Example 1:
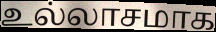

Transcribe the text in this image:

உல்லாசமாக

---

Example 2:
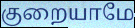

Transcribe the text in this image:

குறையாமே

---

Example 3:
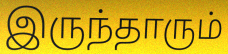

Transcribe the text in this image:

இருந்தாரும்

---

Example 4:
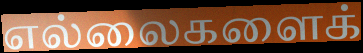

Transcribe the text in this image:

எல்லைகளைக்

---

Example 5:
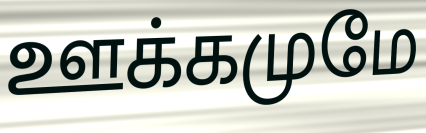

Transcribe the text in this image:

ஊக்கமுமே